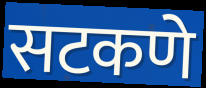
सटकणे